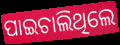
ପାଇଚାଲିଥିଲେ